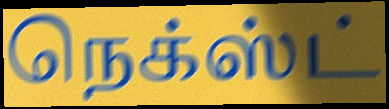
நெக்ஸ்ட்